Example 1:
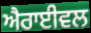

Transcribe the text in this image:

ਐਰਾਈਵਲ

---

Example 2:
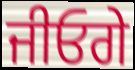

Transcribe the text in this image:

ਜੀਓਗੇ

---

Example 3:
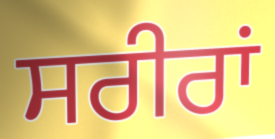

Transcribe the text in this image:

ਸਰੀਰਾਂ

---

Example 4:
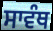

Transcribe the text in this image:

ਸਾਵੰਥ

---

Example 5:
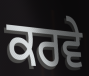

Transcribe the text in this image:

ਕਰਵੇ